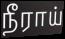
நீராய்